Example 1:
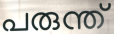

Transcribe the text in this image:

പരുന്ത്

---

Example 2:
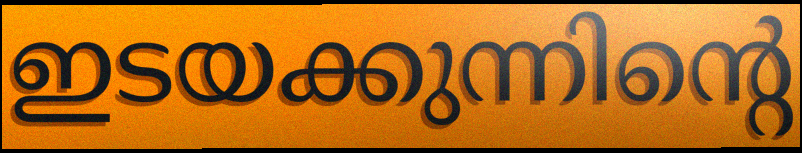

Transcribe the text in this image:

ഇടയക്കുന്നിന്റെ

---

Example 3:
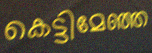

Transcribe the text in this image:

കെട്ടിമേഞ്ഞ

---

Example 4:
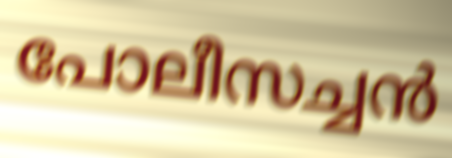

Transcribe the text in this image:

പോലീസച്ചൻ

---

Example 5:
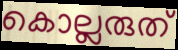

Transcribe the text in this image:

കൊല്ലരുത്